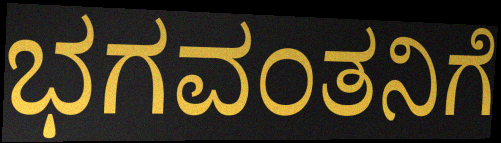
ಭಗವಂತನಿಗೆ